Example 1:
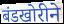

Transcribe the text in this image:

बंडखोरीने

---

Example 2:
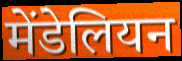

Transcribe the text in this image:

मेंडेलियन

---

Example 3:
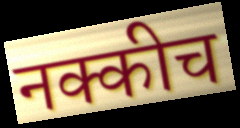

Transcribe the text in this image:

नक्कीच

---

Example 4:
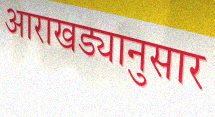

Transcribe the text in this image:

आराखड्यानुसार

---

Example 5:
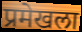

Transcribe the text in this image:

प्रमेखला